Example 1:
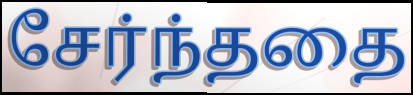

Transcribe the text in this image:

சேர்ந்ததை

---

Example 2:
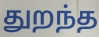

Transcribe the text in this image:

துறந்த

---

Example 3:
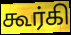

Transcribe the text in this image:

கூர்கி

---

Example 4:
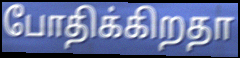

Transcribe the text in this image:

போதிக்கிறதா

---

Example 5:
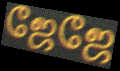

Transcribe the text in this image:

ஜேஜே